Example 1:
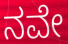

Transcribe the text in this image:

ನವೇ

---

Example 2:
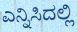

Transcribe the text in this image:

ಎನ್ನಿಸಿದಲ್ಲಿ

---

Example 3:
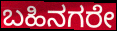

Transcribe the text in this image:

ಬಹಿನಗರೇ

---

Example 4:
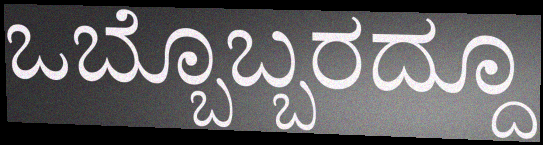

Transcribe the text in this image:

ಒಬ್ಬೊಬ್ಬರದ್ದೂ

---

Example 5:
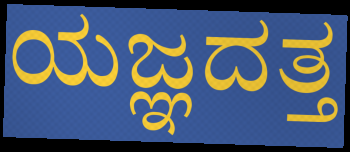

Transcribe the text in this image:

ಯಜ್ಞದತ್ತ